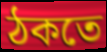
ঠকতে